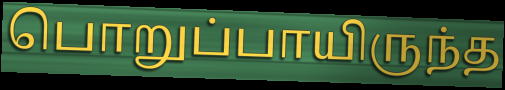
பொறுப்பாயிருந்த